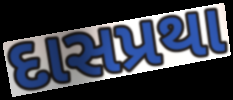
દાસપ્રથા